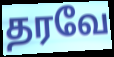
தரவே